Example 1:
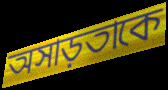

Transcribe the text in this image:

অসাড়তাকে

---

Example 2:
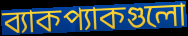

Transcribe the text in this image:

ব্যাকপ্যাকগুলো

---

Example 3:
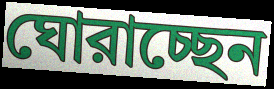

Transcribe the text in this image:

ঘোরাচ্ছেন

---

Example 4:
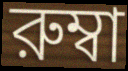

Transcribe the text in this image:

রুম্বা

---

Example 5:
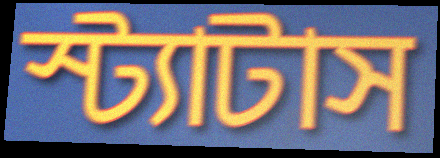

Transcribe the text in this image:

স্ট্যাটাস